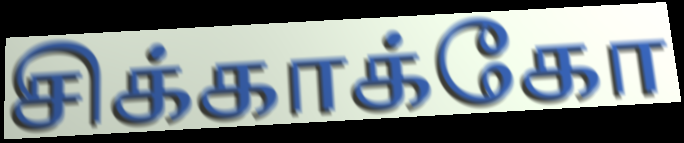
சிக்காக்கோ